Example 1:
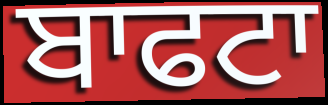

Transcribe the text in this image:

ਬਾਫਟਾ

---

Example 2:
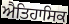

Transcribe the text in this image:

ਐਤਿਹਾਸਿਕ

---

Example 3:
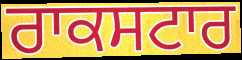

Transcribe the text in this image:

ਰਾਕਸਟਾਰ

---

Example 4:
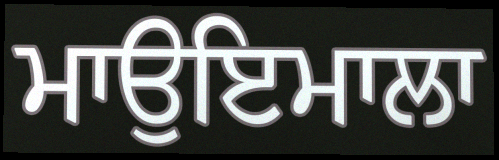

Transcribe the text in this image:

ਮਾਉਇਮਾਲਾ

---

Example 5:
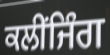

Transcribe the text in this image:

ਕਲੀਂਜਿੰਗ